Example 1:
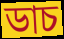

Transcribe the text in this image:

ডাচ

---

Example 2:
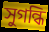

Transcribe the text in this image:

সুগন্ধি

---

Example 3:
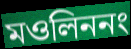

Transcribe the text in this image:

মওলিননং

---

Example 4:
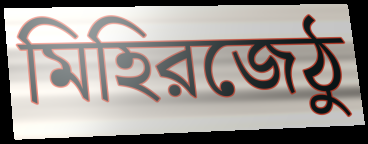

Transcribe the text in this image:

মিহিরজেঠু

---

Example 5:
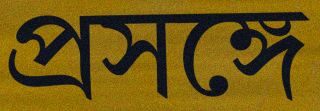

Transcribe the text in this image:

প্রসঙ্গে